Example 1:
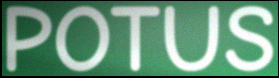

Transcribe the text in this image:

POTUS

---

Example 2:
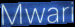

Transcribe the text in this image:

Mwari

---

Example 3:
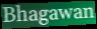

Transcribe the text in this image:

Bhagawan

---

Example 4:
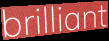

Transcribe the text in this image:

brilliant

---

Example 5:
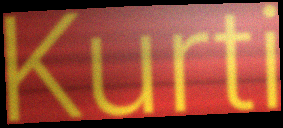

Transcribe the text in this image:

Kurti